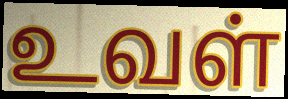
உவள்